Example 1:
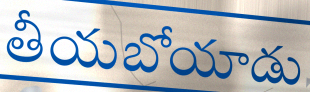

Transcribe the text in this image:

తీయబోయాడు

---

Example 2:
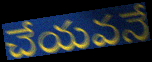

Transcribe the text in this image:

చేయవనే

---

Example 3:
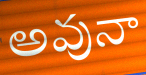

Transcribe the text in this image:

అవునా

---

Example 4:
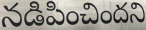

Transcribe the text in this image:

నడిపించిందని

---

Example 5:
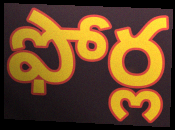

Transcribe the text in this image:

ఫోర్ల